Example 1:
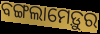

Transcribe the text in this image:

ବଙ୍ଗଲାମେଡ଼ୁର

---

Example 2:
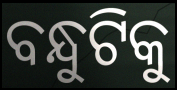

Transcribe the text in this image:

ବନ୍ଧୁଟିକୁ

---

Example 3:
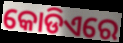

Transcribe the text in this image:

କୋଡିଏରେ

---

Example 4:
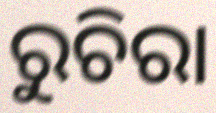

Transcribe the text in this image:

ରୁଚିରା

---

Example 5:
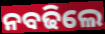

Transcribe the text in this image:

ନବଢିଲେ